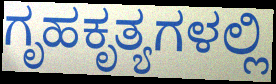
ಗೃಹಕೃತ್ಯಗಳಲ್ಲಿ